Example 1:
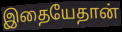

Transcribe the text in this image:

இதையேதான்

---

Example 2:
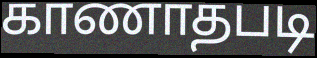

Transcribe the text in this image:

காணாதபடி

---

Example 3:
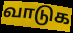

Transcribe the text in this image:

வாடுக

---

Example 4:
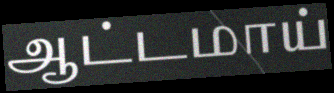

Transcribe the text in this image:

ஆட்டமாய்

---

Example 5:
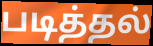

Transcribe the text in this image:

படித்தல்